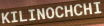
KILINOCHCHI